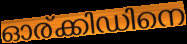
ഓര്ക്കിഡിനെ